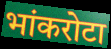
भांकरोटा